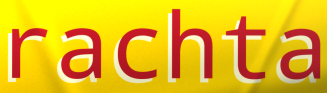
rachta